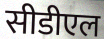
सीडीएल